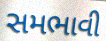
સમભાવી